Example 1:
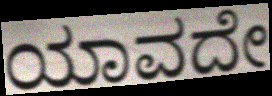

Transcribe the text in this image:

ಯಾವದೇ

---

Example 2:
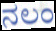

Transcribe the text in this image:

ನಲಂ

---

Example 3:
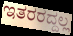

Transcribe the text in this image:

ಇತರರದ್ದಲ್ಲ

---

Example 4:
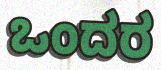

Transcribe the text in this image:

ಒಂದರ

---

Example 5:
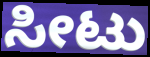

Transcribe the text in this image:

ಸೀಟು